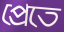
প্রেতে